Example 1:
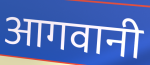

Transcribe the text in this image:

आगवानी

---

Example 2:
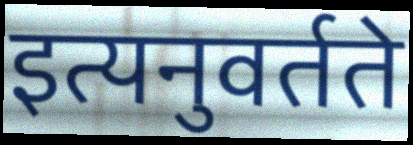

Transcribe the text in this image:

इत्यनुवर्तते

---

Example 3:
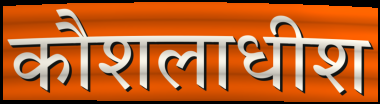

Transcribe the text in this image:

कौशलाधीश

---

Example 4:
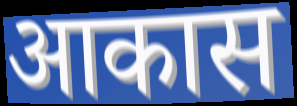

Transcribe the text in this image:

आकास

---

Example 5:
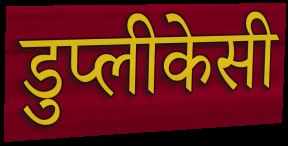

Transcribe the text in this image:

डुप्लीकेसी